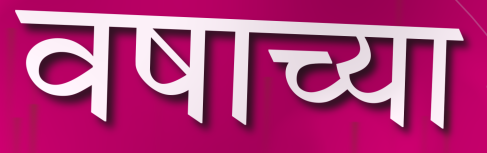
वषाच्या